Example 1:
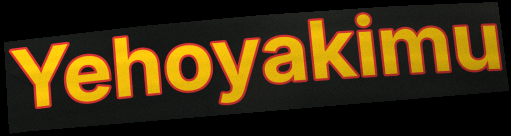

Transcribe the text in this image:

Yehoyakimu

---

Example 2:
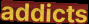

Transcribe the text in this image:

addicts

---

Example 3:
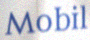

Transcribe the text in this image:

Mobil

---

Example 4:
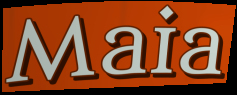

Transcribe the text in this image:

Maia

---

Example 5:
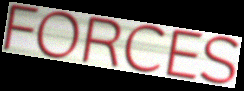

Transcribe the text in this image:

FORCES